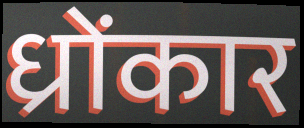
ध्रोंकार